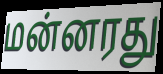
மன்னரது